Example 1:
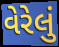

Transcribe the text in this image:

વેરેલું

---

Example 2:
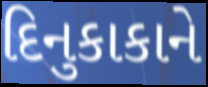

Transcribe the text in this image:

દિનુકાકાને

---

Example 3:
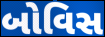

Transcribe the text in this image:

બોવિસ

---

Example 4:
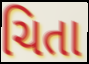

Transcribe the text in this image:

ચિતા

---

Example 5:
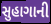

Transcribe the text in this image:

સુહાગાની